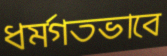
ধর্মগতভাবে